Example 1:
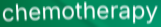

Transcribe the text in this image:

chemotherapy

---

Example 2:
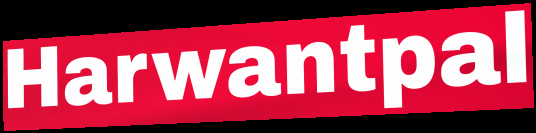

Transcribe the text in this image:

Harwantpal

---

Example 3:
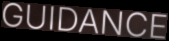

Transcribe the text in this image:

GUIDANCE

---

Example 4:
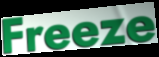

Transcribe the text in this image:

Freeze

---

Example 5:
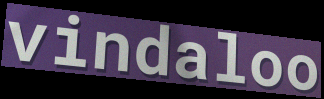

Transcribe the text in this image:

vindaloo